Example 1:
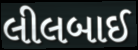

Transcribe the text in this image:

લીલબાઈ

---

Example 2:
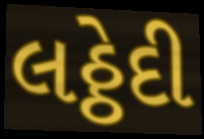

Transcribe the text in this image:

લઠ્ઠેદી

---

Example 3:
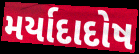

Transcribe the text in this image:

મર્યાદાદોષ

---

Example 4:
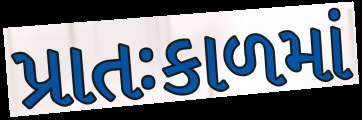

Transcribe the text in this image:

પ્રાતઃકાળમાં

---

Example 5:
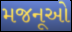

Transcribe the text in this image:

મજનૂઓ